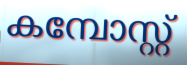
കമ്പോസ്റ്റ്